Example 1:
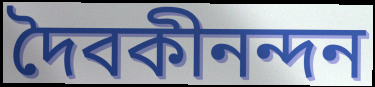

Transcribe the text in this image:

দৈবকীনন্দন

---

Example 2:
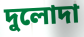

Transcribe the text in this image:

দুলোদা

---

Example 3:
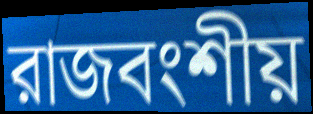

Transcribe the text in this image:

রাজবংশীয়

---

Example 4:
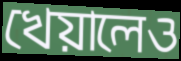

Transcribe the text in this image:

খেয়ালেও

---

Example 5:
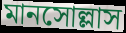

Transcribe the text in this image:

মানসোল্লাস